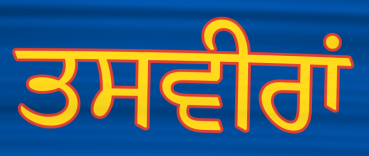
ਤਸਵੀਰਾਂ